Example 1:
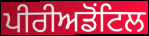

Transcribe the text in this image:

ਪੀਰੀਅਡੋਂਟਿਲ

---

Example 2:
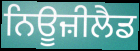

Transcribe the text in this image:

ਨਿਊਜ਼ੀਲੈਡ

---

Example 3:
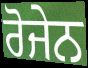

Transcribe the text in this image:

ਰੋਜੇਨ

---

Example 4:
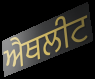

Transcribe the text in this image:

ਐਥਲੀਟ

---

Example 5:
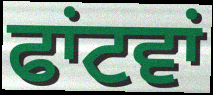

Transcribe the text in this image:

ਫਾਂਟਵਾਂ